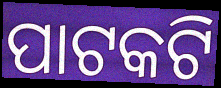
ପାଟକଟି